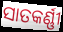
ସାତକର୍ଣ୍ଣୀ